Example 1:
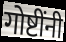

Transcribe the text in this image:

गोष्टींनी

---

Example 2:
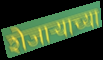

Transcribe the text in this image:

शेजाऱ्याच्या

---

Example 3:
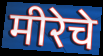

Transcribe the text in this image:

मीरेचे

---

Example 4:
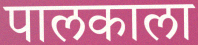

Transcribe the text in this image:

पालकाला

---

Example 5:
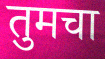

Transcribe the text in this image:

तुमचा